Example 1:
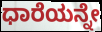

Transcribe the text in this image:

ಧಾರೆಯನ್ನೇ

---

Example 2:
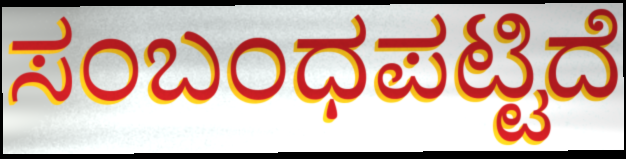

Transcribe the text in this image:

ಸಂಬಂಧಪಟ್ಟಿದೆ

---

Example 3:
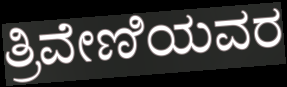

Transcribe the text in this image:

ತ್ರಿವೇಣಿಯವರ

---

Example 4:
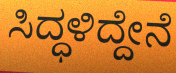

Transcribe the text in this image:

ಸಿದ್ಧಳಿದ್ದೇನೆ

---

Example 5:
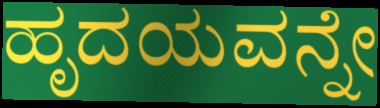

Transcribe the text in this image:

ಹೃದಯವನ್ನೇ